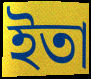
ইতা